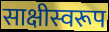
साक्षीस्वरूप